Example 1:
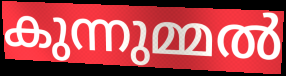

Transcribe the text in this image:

കുന്നുമ്മൽ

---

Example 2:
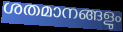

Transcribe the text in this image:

ശതമാനങ്ങളും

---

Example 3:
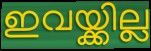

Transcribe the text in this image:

ഇവയ്ക്കില്ല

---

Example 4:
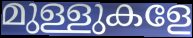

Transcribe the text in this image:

മുള്ളുകളേ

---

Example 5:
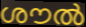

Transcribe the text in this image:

ശൗൽ